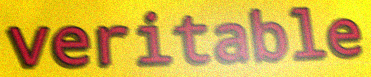
veritable